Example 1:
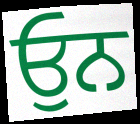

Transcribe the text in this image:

ਓੁਨ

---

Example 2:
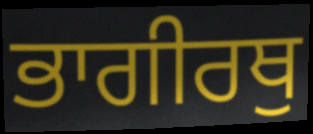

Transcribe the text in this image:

ਭਾਗੀਰਥੁ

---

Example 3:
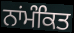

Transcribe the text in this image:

ਨਾਂਮੰਕਿਤ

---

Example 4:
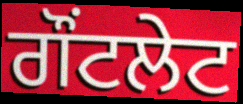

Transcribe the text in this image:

ਗੌਂਟਲੇਟ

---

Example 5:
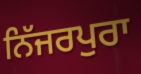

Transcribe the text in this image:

ਨਿੱਜਰਪੁਰਾ